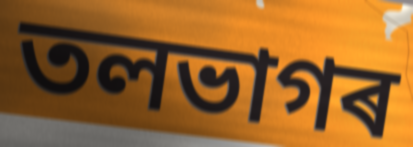
তলভাগৰ